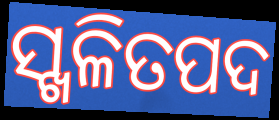
ସ୍ଖଳିତପଦ